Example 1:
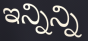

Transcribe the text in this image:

ఇన్నిన్ని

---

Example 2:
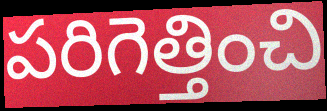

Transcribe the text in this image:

పరిగెత్తించి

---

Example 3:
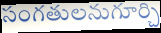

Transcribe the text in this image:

సంగతులనుగూర్చి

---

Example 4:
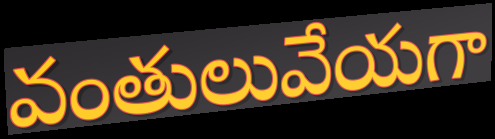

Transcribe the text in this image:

వంతులువేయగా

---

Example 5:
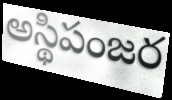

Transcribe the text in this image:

అస్థిపంజర